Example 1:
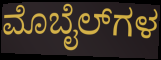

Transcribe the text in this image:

ಮೊಬೈಲ್‌ಗಳ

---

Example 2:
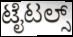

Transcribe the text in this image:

ಟೈಟಲ್ಸ್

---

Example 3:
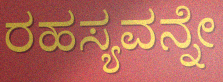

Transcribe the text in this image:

ರಹಸ್ಯವನ್ನೇ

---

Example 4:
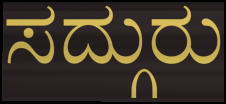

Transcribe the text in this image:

ಸದ್ಗುರು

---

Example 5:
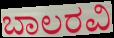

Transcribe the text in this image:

ಬಾಲರವಿ